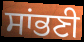
ਸਾਂਭਣੀ